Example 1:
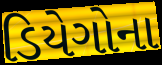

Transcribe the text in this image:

ડિયેગોના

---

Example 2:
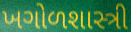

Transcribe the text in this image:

ખગોળશાસ્ત્રી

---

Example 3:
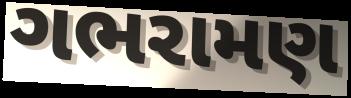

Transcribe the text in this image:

ગભરામણ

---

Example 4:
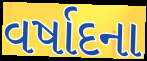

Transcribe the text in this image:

વર્ષાદના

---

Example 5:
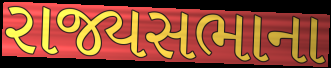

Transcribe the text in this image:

રાજ્યસભાના